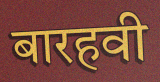
बारहवी